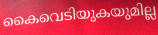
കൈവെടിയുകയുമില്ല